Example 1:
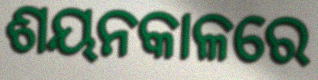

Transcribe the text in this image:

ଶୟନକାଳରେ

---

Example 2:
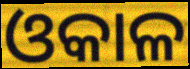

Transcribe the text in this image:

ଓକାଳ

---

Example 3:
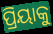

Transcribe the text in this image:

ପ୍ରିୟାକୁ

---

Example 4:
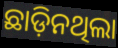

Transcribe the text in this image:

ଛାଡ଼ିନଥିଲା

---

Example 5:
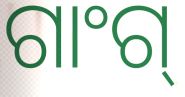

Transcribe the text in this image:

ଗାଂଗ୍